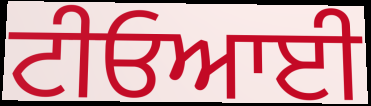
ਟੀਓਆਈ